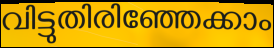
വിട്ടുതിരിഞ്ഞേക്കാം